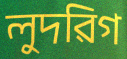
লুদৱিগ